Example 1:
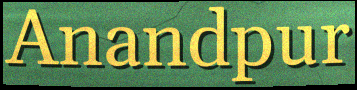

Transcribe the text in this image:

Anandpur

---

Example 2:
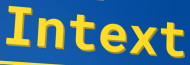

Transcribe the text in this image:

Intext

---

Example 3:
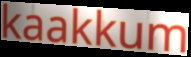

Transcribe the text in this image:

kaakkum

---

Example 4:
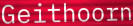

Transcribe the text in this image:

Geithoorn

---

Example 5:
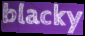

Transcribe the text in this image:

blacky